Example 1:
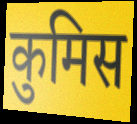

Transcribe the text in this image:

कुमिस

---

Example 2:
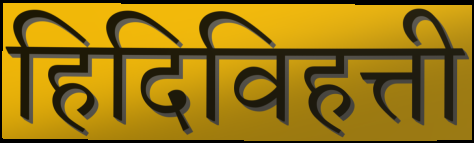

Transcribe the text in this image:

हिदिविहत्ती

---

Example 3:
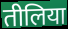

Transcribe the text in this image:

तीलिया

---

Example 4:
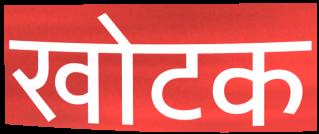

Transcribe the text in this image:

खोटक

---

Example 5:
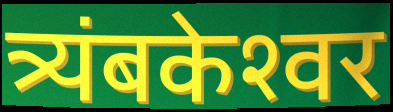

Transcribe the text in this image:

त्र्यंबकेश्वर